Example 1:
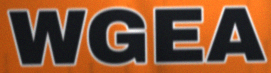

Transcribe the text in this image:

WGEA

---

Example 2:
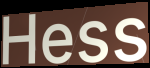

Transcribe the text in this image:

Hess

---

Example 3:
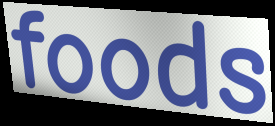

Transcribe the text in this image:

foods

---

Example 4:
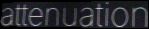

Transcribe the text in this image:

attenuation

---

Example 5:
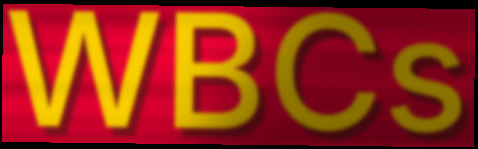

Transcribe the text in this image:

WBCs